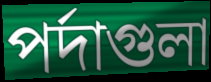
পর্দাগুলা